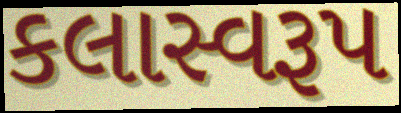
કલાસ્વરૂપ